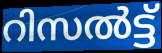
റിസൽട്ട്